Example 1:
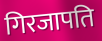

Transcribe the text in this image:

गिरजापति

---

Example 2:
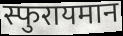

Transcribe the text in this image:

स्फुरायमान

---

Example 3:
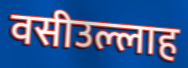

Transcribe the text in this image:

वसीउल्लाह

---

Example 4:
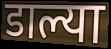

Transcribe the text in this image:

डाल्या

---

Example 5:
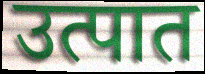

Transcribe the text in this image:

उत्पात